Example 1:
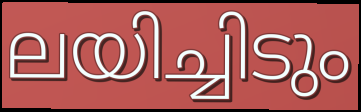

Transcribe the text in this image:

ലയിച്ചിടും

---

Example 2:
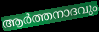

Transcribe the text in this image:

ആർത്തനാദവും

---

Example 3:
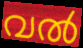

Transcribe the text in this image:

വൽ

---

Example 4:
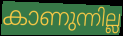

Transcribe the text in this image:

കാണുന്നില്ല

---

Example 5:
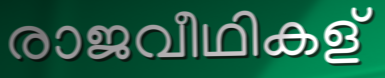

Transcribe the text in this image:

രാജവീഥികള്